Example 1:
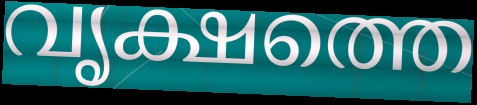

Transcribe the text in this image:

വൃക്ഷത്തെ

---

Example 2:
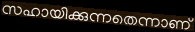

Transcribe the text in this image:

സഹായിക്കുന്നതെന്നാണ്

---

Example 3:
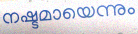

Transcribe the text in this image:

നഷ്ടമായെന്നും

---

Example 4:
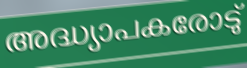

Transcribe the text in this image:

അദ്ധ്യാപകരോടു്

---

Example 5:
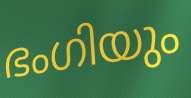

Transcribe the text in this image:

ഭംഗിയും